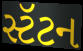
સ્ટૅટન